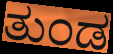
ತುಂಡ